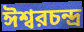
ঈশ্বরচন্দ্র